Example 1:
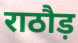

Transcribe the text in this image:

राठौड़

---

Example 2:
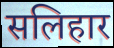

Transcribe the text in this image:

सलिहार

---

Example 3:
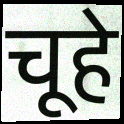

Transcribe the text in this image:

चूहे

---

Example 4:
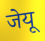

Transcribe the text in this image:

जेयू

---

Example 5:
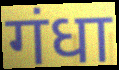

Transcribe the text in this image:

गंधा